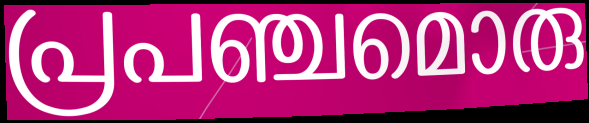
പ്രപഞ്ചമൊരു